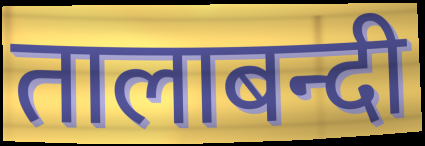
तालाबन्दी